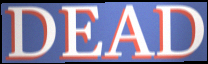
DEAD